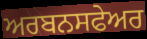
ਅਰਬਨਸਫੇਅਰ